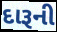
દારૂની